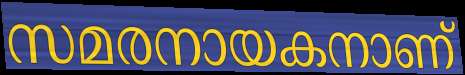
സമരനായകനാണ്